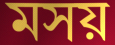
মসয়